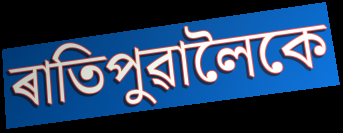
ৰাতিপুৱালৈকে